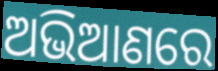
ଅଭିଆଣରେ